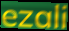
ezali